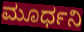
ಮೂರ್ಧನಿ